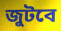
জুটবে